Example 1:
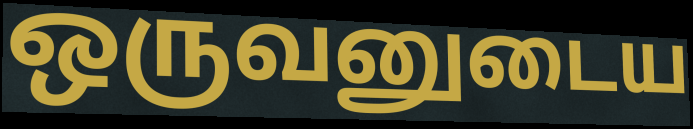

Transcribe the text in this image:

ஒருவனுடைய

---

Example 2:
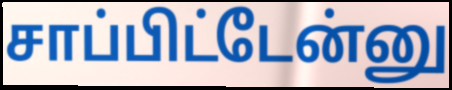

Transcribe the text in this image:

சாப்பிட்டேன்னு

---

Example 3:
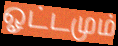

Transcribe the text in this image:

ஓட்டமும்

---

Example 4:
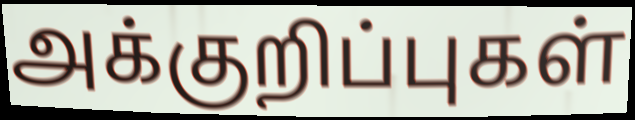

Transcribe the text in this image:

அக்குறிப்புகள்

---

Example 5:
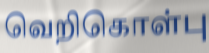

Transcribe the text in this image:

வெறிகொள்பு